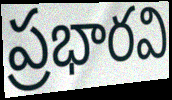
ప్రభారవి